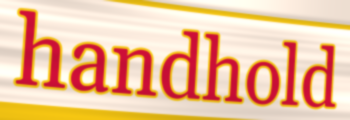
handhold